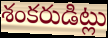
శంకరుడిట్లు